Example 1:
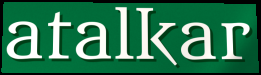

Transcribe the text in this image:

atalkar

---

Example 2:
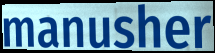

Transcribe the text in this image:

manusher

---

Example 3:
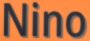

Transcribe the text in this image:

Nino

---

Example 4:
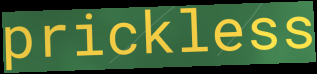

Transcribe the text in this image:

prickless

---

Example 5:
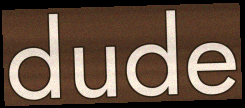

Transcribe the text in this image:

dude